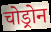
चोड्रोन